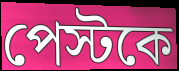
পেস্টকে